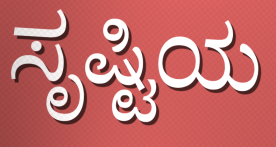
ಸೃಷ್ಟಿಯ